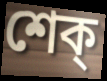
শেক্